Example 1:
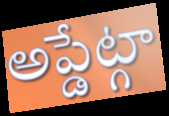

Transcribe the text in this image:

అప్డేట్గా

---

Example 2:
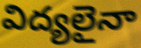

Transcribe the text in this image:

విద్యలైనా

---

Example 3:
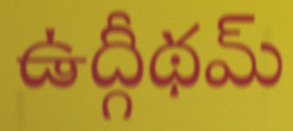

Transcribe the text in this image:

ఉద్గీథమ్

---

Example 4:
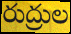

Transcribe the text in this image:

రుద్రుల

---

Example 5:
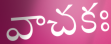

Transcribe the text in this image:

వాచకః